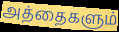
அத்தைகளும்